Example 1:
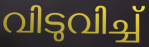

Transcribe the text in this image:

വിടുവിച്ച്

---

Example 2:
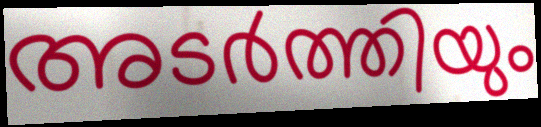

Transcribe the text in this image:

അടർത്തിയും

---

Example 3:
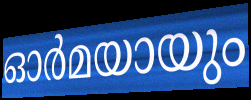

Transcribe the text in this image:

ഓർമയായും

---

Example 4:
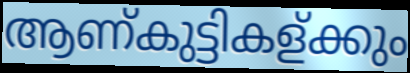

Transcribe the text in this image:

ആണ്കുട്ടികള്ക്കും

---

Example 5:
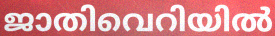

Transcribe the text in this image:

ജാതിവെറിയിൽ